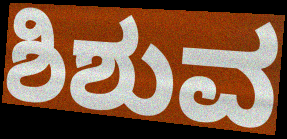
ಶಿಶುವ